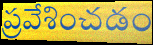
ప్రవేశించడం